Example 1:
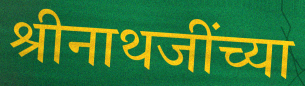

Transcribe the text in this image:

श्रीनाथजींच्या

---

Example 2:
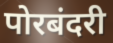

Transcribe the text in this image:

पोरबंदरी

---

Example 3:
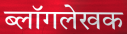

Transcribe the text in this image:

ब्लॉगलेखक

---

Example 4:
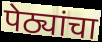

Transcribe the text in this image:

पेठ्यांचा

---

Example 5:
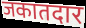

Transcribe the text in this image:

जकातदार